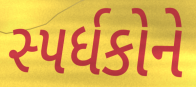
સ્પર્ધકોને